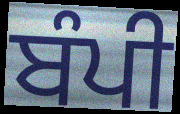
ਬੰਪੀ